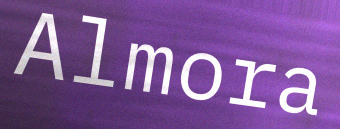
Almora